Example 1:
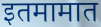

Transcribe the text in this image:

इतमामात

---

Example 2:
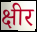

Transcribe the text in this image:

क्षीर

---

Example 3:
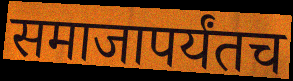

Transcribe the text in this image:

समाजापर्यंतच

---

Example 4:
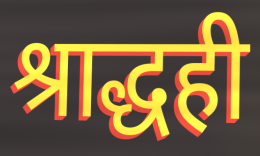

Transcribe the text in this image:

श्राद्धही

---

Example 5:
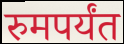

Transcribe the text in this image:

रुमपर्यंत